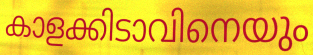
കാളക്കിടാവിനെയും